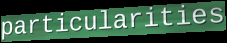
particularities